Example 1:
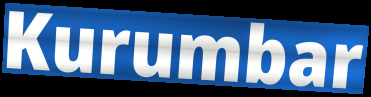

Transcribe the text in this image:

Kurumbar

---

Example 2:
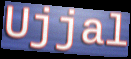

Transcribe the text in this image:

Ujjal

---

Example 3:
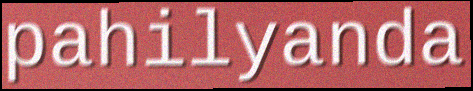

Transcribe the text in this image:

pahilyanda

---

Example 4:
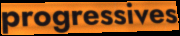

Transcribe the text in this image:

progressives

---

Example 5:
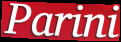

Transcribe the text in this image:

Parini